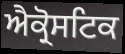
ਐਕ੍ਰੋਸਟਿਕ